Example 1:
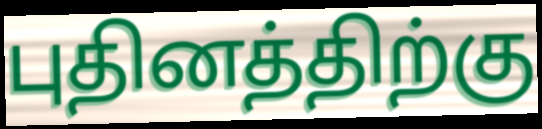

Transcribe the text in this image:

புதினத்திற்கு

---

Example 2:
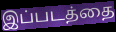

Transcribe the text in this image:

இப்படத்தை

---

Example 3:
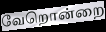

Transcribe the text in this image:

வேறொன்றை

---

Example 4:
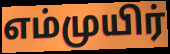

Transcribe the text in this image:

எம்முயிர்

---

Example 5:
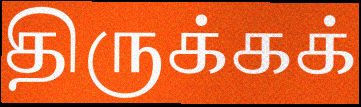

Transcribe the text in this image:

திருக்கக்